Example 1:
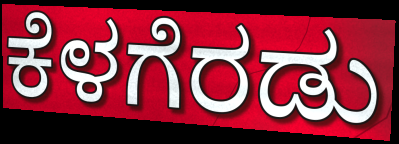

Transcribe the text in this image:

ಕೆಳಗೆರಡು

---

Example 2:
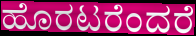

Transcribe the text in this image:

ಹೊರಟರೆಂದರೆ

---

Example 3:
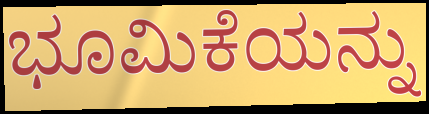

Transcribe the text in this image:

ಭೂಮಿಕೆಯನ್ನು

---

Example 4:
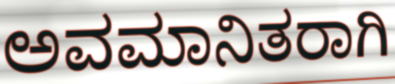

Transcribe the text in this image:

ಅವಮಾನಿತರಾಗಿ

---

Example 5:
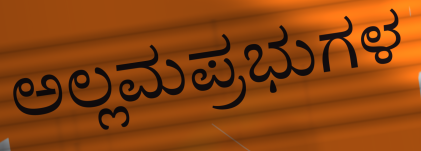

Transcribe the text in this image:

ಅಲ್ಲಮಪ್ರಭುಗಳ